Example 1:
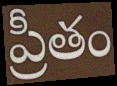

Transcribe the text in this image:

ప్రీతం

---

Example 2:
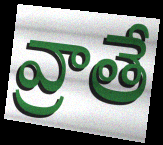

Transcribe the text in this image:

వ్రాతే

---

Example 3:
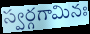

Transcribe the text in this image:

స్వర్గగామినః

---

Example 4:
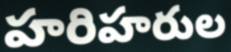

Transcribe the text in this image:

హరిహరుల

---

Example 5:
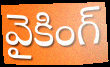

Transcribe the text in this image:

వైకింగ్